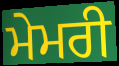
ਮੇਮਰੀ